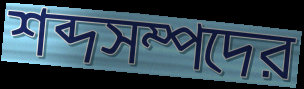
শব্দসম্পদের